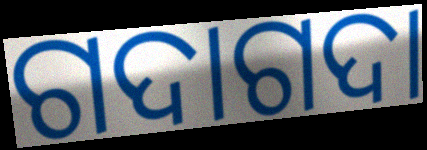
ଗଦାଗଦା